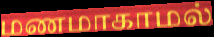
மணமாகாமல்